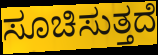
ಸೂಚಿಸುತ್ತದೆ